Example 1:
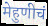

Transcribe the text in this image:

मेहुणीचं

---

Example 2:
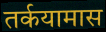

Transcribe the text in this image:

तर्कयामास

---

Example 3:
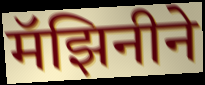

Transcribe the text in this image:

मॅझिनीने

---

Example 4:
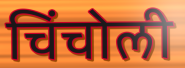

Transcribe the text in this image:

चिंचोली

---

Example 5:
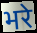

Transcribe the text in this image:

भरे